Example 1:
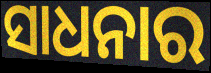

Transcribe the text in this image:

ସାଧନାର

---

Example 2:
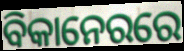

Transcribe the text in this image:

ବିକାନେରରେ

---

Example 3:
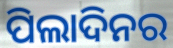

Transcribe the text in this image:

ପିଲାଦିନର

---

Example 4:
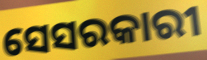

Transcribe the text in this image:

ସେସରକାରୀ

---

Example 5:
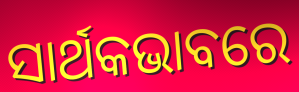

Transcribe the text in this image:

ସାର୍ଥକଭାବରେ